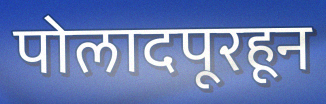
पोलादपूरहून